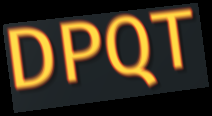
DPQT